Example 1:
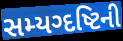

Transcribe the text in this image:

સમ્યગ્દષ્ટિની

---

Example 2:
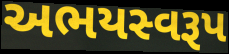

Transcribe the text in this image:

અભયસ્વરૂપ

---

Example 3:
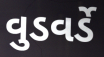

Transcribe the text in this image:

વુડવર્ડે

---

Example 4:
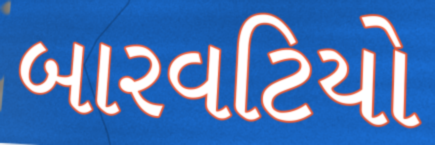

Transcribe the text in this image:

બારવટિયો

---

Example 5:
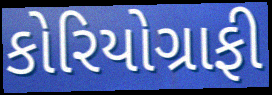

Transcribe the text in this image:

કોરિયોગ્રાફી